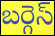
బర్గెస్